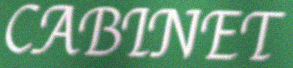
CABINET